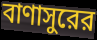
বাণাসুরের